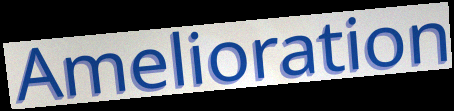
Amelioration